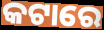
କଟାରେ